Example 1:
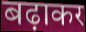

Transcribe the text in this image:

बढ़ाकर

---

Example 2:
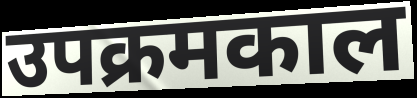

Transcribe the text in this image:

उपक्रमकाल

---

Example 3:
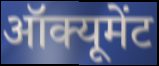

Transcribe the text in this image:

ऑक्यूमेंट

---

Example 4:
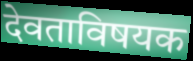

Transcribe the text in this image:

देवताविषयक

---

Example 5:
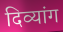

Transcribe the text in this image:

दिव्यांग